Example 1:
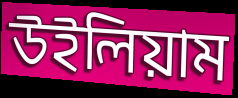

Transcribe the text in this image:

উইলিয়াম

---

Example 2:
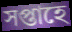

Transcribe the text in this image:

সপ্তাহে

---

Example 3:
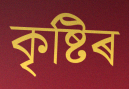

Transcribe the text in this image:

কৃষ্টিৰ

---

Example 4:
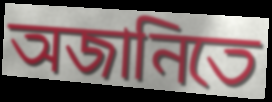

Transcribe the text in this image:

অজানিতে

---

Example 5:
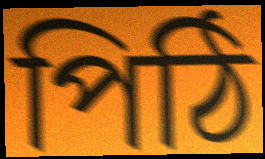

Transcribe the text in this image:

পিঠি